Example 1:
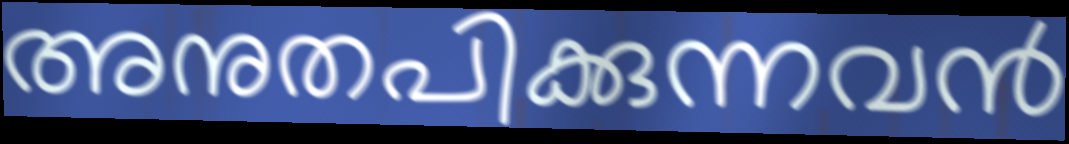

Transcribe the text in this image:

അനുതപിക്കുന്നവൻ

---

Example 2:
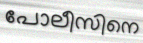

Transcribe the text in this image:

പോലീസിനെ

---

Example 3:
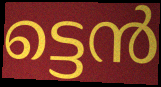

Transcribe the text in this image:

ട്ടെൻ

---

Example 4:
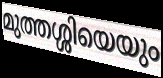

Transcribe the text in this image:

മുത്തശ്ശിയെയും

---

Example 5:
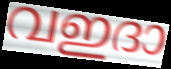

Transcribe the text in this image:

വഇദാ